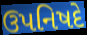
ઉપનિષદે